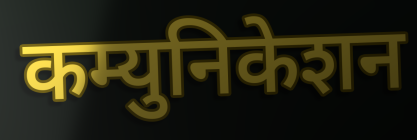
कम्युनिकेशन